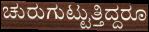
ಚುರುಗುಟ್ಟುತ್ತಿದ್ದರೂ